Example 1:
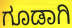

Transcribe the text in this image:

ಗೂಡಾಗಿ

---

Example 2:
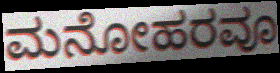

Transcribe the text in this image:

ಮನೋಹರವೂ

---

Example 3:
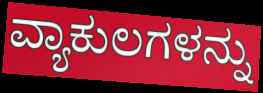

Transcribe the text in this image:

ವ್ಯಾಕುಲಗಳನ್ನು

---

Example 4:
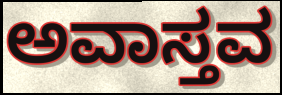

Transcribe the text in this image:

ಅವಾಸ್ತವ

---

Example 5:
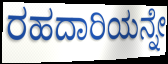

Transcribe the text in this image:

ರಹದಾರಿಯನ್ನೇ